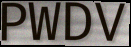
PWDV